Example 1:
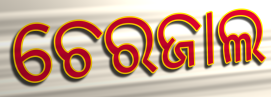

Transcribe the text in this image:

ଚେରଜାଲ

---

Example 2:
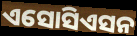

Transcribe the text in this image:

ଏସୋସିଏସନ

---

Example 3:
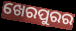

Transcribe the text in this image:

ଖେରପୁରର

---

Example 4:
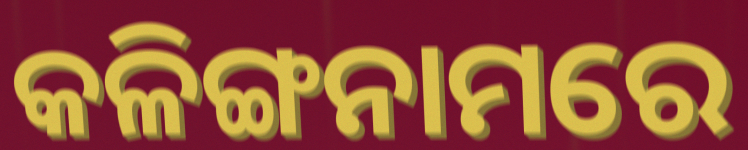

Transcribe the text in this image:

କଳିଙ୍ଗନାମରେ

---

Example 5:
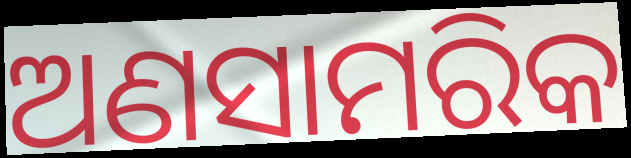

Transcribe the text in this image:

ଅଣସାମରିକ